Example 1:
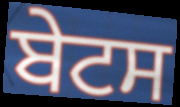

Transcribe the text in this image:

ਬੇਟਸ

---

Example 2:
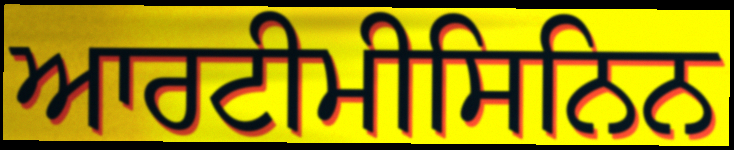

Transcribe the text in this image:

ਆਰਟੀਮੀਸਿਨਿਨ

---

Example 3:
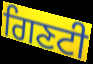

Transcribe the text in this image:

ਗਿਣਟੀ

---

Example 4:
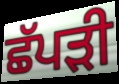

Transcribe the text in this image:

ਛੱਪੜੀ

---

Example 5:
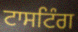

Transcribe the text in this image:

ਟਾਸਟਿੰਗ